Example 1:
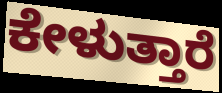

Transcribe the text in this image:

ಕೇಳುತ್ತಾರೆ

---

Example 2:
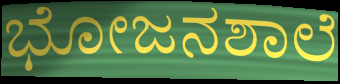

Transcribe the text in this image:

ಭೋಜನಶಾಲೆ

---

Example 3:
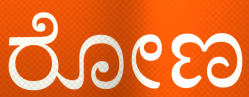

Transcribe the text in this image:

ರೋಣ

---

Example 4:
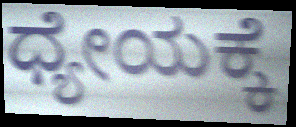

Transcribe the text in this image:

ಧ್ಯೇಯಕ್ಕೆ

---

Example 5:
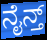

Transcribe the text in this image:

ನೈನ್ತ್